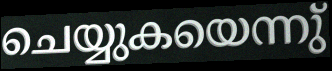
ചെയ്യുകയെന്നു്